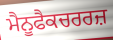
ਮੈਨੂਫੈਕਚਰਰਜ਼